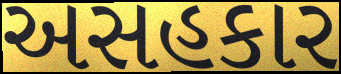
અસહકાર